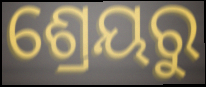
ଶ୍ରେୟରୁ